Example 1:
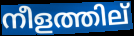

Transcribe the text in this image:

നീളത്തില്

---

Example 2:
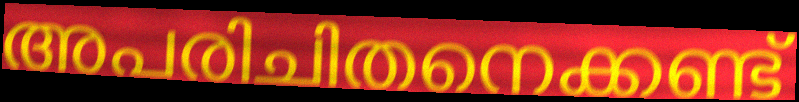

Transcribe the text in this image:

അപരിചിതനെക്കണ്ട്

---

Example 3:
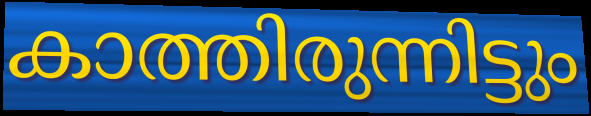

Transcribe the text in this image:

കാത്തിരുന്നിട്ടും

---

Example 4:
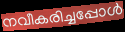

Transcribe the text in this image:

നവീകരിച്ചപ്പോൾ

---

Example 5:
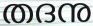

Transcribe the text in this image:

തദനു